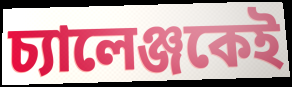
চ্যালেঞ্জকেই